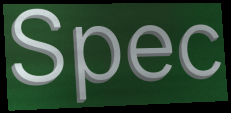
Spec